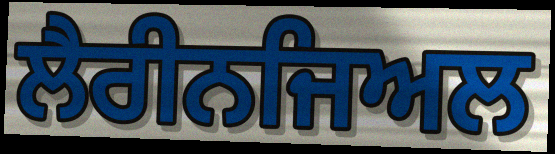
ਲੈਰੀਨਜਿਅਲ